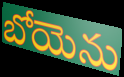
బోయెను